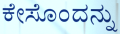
ಕೇಸೊಂದನ್ನು